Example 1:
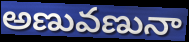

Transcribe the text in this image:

అణువణునా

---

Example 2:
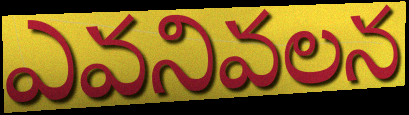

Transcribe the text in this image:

ఎవనివలన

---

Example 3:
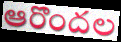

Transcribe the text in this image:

ఆరొందల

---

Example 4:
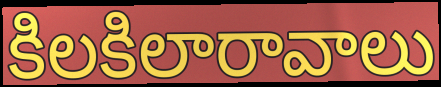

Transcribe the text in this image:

కిలకిలారావాలు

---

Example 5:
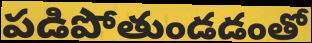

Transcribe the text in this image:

పడిపోతుండడంతో